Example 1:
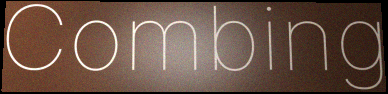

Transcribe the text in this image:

Combing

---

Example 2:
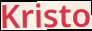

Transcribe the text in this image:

Kristo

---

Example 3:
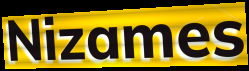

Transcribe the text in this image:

Nizames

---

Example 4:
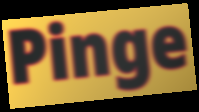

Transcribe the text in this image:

Pinge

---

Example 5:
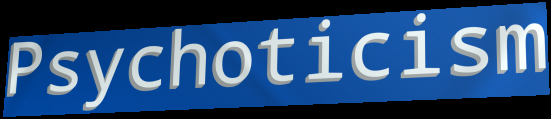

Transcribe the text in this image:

Psychoticism